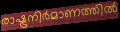
രാഷ്ട്രനിർമാണത്തിൽ